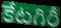
కేటగిరీ